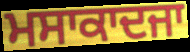
ਮਸਾਕਾਦਜਾ